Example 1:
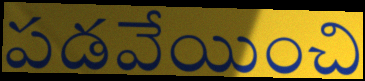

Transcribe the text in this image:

పడవేయించి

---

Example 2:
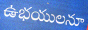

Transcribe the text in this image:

ఉభయులనూ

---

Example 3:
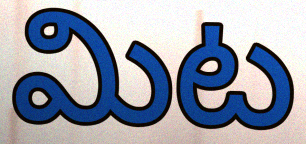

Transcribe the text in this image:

మిట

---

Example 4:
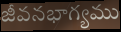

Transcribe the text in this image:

జీవనభాగ్యము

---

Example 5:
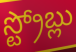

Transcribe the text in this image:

స్ట్రోబ్లు